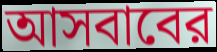
আসবাবের